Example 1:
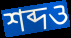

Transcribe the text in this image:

শব্দও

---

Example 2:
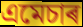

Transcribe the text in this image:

এমেচাৰ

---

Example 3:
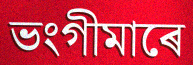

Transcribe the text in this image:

ভংগীমাৰে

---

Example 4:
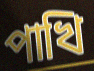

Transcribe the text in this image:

পাখি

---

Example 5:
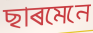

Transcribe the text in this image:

ছাৰমেনে